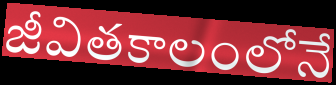
జీవితకాలంలోనే